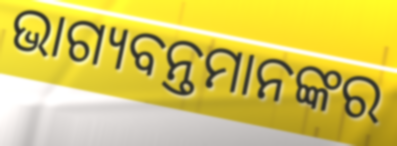
ଭାଗ୍ୟବନ୍ତମାନଙ୍କର